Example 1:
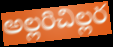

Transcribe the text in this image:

అల్లరిచిల్లర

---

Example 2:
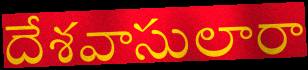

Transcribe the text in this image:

దేశవాసులారా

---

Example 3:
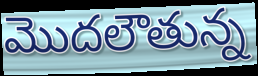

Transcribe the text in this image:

మొదలౌతున్న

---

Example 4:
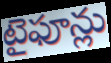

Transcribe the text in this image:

టైఫూన్లు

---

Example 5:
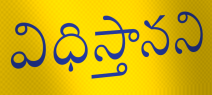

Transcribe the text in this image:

విధిస్తానని